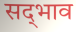
सद्‍भाव